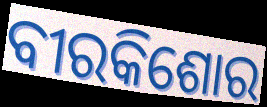
ବୀରକିଶୋର